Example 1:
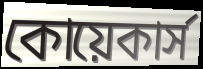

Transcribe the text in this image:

কোয়েকার্স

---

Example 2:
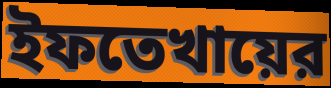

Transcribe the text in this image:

ইফতেখায়ের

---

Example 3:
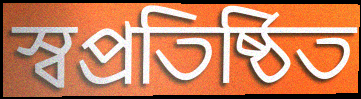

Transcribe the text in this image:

স্বপ্রতিষ্ঠিত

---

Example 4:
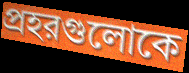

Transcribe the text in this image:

প্রহরগুলোকে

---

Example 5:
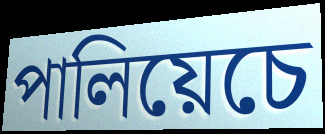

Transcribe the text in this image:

পালিয়েচে